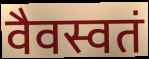
वैवस्वतं